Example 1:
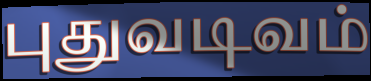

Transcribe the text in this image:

புதுவடிவம்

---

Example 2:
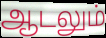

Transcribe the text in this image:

ஆடலும்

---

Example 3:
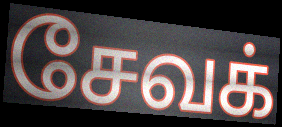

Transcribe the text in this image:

சேவக்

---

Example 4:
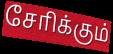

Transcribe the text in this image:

சேரிக்கும்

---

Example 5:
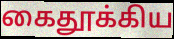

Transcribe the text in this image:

கைதூக்கிய